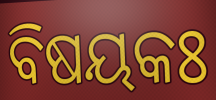
ବିଷୟକଃ